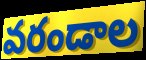
వరండాల